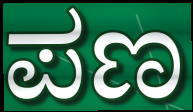
ಪಣ